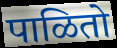
पाळितो